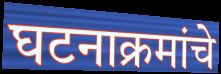
घटनाक्रमांचे